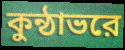
কুন্ঠাভরে